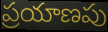
ప్రయాణపు